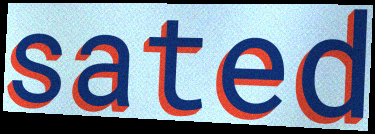
sated